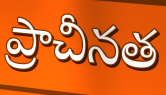
ప్రాచీనత